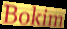
Bokim